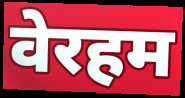
वेरहम